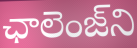
ఛాలెంజ్‌ని